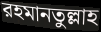
রহমানতুল্লাহ